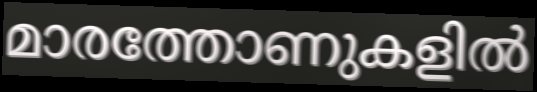
മാരത്തോണുകളിൽ